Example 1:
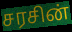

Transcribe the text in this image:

சரசின்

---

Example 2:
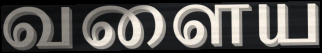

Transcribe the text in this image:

வளைய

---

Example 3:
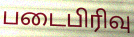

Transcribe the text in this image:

படைபிரிவு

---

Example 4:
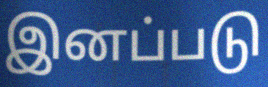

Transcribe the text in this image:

இனப்படு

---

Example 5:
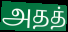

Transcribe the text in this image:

அதத்